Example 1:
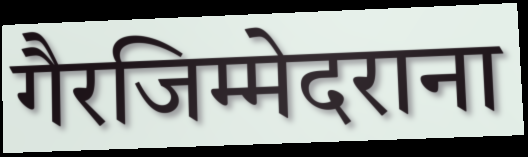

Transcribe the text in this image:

गैरजिम्मेदराना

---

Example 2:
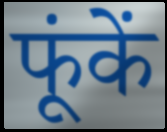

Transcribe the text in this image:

फूंकें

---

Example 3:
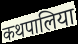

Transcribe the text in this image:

कथपालिया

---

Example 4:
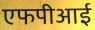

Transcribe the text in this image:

एफपीआई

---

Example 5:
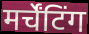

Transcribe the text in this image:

मर्चेंटिंग